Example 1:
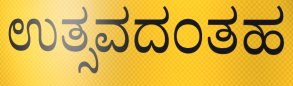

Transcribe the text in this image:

ಉತ್ಸವದಂತಹ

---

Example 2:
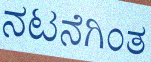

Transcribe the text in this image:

ನಟನೆಗಿಂತ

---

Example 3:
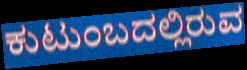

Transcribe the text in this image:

ಕುಟುಂಬದಲ್ಲಿರುವ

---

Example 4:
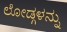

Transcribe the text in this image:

ಲೋಡ್ಗಳನ್ನು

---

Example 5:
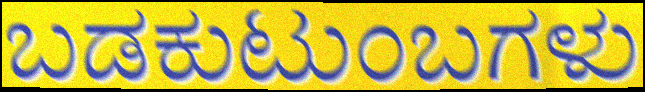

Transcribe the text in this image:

ಬಡಕುಟುಂಬಗಳು